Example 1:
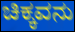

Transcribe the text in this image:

ಚಿಕ್ಕವನು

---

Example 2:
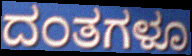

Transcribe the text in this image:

ದಂತಗಳೂ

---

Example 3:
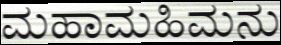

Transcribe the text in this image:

ಮಹಾಮಹಿಮನು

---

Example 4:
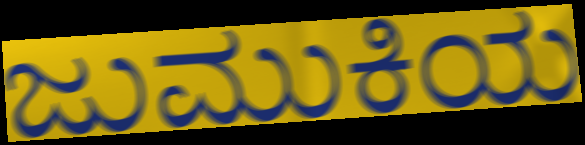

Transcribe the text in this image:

ಜುಮುಕಿಯ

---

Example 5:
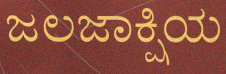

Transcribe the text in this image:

ಜಲಜಾಕ್ಷಿಯ